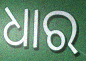
ଧାର